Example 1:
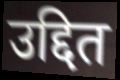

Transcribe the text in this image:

उद्दित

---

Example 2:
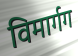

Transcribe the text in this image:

विमार्गग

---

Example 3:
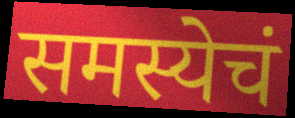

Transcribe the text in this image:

समस्येचं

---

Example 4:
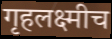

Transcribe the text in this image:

गृहलक्ष्मीच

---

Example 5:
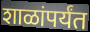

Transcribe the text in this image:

शाळांपर्यंत